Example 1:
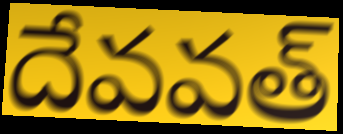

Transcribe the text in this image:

దేవవత్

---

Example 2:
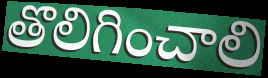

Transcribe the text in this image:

తొలిగించాలి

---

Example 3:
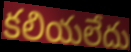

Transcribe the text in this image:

కలియలేదు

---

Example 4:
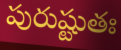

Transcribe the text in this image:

పురుష్టుతః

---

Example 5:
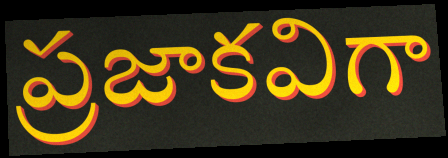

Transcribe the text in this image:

ప్రజాకవిగా